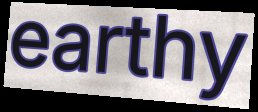
earthy